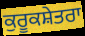
ਕੁਰੂਕਸ਼ੇਤਰਾ